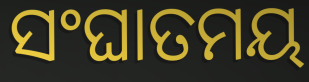
ସଂଘାତମୟ